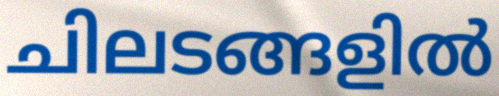
ചിലടങ്ങളിൽ